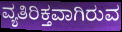
ವ್ಯತಿರಿಕ್ತವಾಗಿರುವ